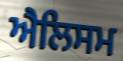
ਐਲਿਸਮ